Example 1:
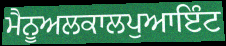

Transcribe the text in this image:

ਮੈਨੂਅਲਕਾਲਪੁਆਇੰਟ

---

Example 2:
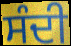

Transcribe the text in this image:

ਸੰਦੀ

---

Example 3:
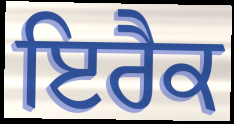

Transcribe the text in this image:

ਇਰੈਕ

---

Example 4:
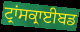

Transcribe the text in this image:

ਟ੍ਰਾਂਸਕ੍ਰਾਈਬਡ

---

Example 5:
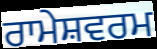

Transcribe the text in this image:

ਰਾਮੇਸ਼ਵਰਮ